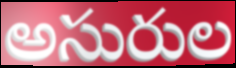
అసురుల